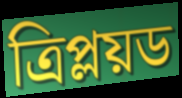
ত্রিপ্লয়ড